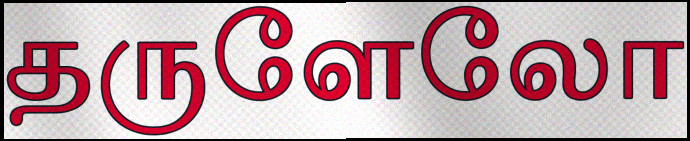
தருளேலோ